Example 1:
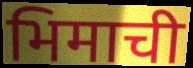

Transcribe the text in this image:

भिमाची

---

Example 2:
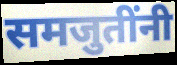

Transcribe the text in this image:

समजुतींनी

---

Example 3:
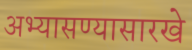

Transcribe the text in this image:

अभ्यासण्यासारखे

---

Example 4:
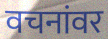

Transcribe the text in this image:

वचनांवर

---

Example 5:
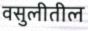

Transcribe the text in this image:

वसुलीतील